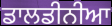
ਡਾਲਡੀਨੀਆ